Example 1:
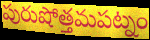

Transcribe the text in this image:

పురుషోత్తమపట్నం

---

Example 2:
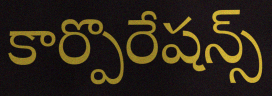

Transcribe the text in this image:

కార్పొరేషన్స్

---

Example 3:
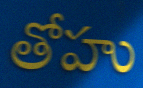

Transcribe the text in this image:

తోహు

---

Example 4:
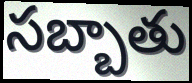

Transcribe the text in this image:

సబ్బాతు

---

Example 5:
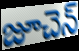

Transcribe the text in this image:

జూచెన్